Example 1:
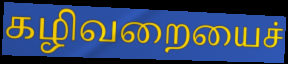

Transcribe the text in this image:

கழிவறையைச்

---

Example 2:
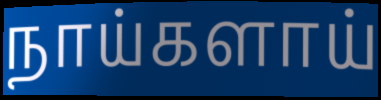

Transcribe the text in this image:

நாய்களாய்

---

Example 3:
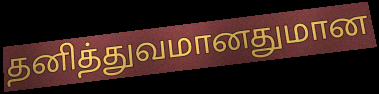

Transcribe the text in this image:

தனித்துவமானதுமான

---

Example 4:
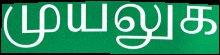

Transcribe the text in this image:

முயலுக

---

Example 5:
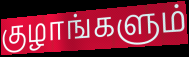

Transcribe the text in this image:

குழாங்களும்